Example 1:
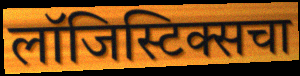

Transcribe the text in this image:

लॉजिस्टिक्सचा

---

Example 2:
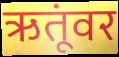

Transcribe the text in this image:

ऋतूंवर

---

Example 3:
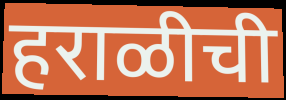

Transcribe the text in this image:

हराळीची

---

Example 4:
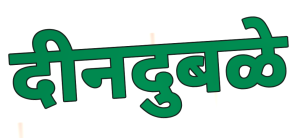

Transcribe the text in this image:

दीनदुबळे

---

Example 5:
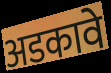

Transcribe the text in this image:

अडकावे